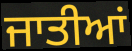
ਜਾਤੀਆਂ